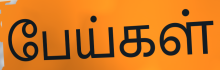
பேய்கள்